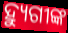
ହ୍ୟୁଗୀଙ୍କ